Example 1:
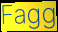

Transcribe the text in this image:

Fagg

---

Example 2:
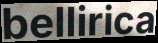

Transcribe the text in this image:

bellirica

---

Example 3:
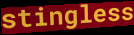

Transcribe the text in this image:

stingless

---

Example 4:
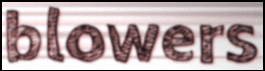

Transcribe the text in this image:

blowers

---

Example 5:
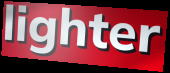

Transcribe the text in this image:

lighter